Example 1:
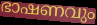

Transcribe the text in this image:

ഭാഷണവും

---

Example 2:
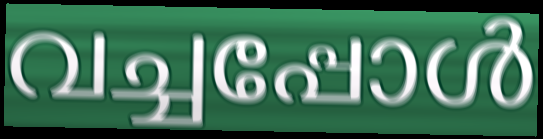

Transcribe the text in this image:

വച്ചപ്പോൾ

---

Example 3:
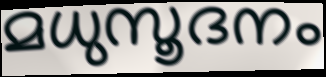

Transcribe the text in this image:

മധുസൂദനം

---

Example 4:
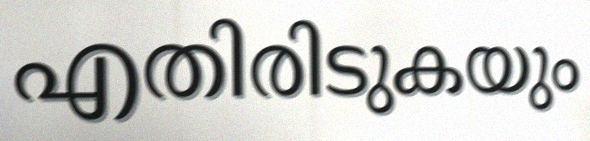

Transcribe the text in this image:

എതിരിടുകയും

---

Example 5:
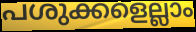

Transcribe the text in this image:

പശുക്കളെല്ലാം